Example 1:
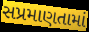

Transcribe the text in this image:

સપ્રમાણતામાં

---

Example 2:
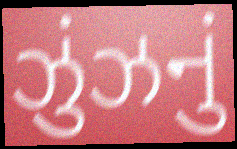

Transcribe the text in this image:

ઝુંઝનું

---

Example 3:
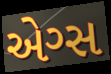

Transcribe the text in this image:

એગ્સ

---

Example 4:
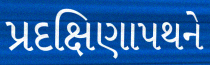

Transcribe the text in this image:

પ્રદક્ષિણાપથને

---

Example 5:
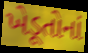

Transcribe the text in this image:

ખેડૂતોનાં